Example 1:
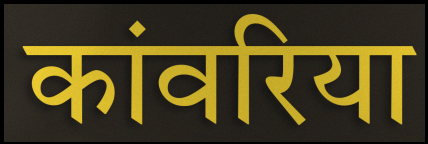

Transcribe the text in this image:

कांवरिया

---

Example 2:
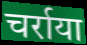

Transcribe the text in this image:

चर्राया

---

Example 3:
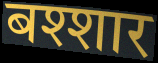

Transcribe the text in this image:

बश्शार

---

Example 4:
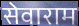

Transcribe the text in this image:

सेवाराम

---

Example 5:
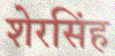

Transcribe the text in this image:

शेरसिंह